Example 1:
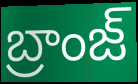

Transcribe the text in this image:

బ్రాంజ్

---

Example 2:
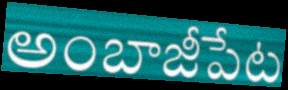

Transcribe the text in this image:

అంబాజీపేట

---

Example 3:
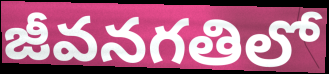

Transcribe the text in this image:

జీవనగతిలో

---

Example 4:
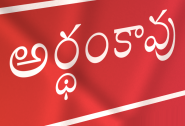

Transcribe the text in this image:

అర్థంకావు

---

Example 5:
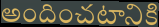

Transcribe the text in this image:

అందించటానికి